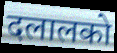
दलालको